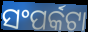
ସଂପର୍କଟା